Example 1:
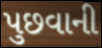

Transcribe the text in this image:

પુછવાની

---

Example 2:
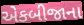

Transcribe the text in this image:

એકબીજાના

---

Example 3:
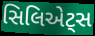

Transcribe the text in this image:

સિલિએટ્સ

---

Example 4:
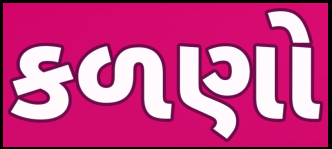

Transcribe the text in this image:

કળણો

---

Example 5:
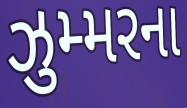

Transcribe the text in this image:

ઝુમ્મરના